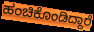
ಹಂಚಿಕೊಂಡಿದ್ದಾರೆ